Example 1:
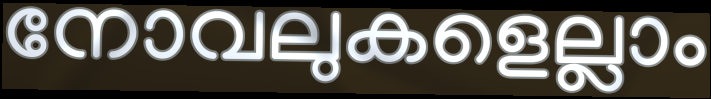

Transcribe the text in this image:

നോവലുകളെല്ലാം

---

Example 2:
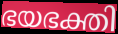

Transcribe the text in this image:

ഭയഭക്തി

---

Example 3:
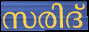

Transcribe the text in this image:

സരിദ്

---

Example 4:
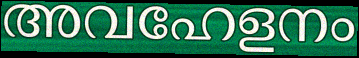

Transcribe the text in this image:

അവഹേളനം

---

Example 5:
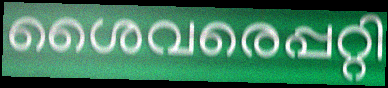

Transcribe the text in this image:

ശൈവരെപ്പറ്റി